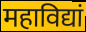
महाविद्यां